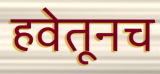
हवेतूनच